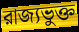
রাজ্যভুক্ত